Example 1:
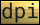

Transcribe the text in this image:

dpi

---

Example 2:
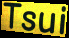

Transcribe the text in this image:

Tsui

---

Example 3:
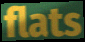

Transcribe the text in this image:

flats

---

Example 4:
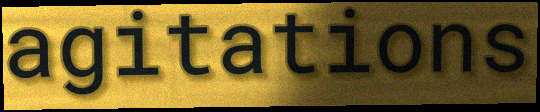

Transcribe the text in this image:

agitations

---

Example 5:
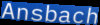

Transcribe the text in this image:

Ansbach